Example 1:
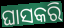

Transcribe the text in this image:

ଘାସକରି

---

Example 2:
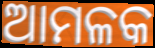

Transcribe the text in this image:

ଆମଳକ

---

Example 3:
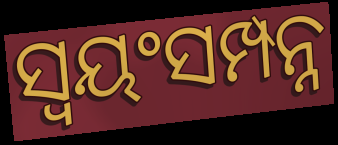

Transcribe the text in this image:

ସ୍ବୟଂସମ୍ପନ୍ନ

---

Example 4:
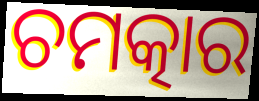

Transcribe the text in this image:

ଚମତ୍କାର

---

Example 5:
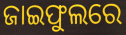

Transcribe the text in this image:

ଜାଇଫୁଲରେ